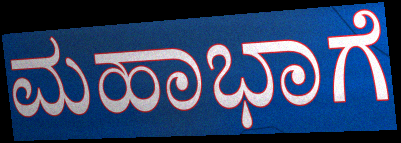
ಮಹಾಭಾಗೆ